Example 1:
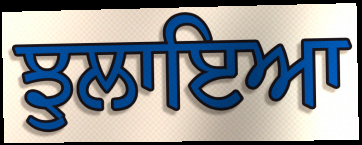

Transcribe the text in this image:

ਝੁਲਾਇਆ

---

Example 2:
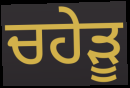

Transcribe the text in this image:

ਚਹੇੜੂ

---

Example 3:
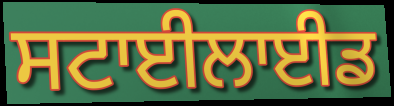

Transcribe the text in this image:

ਸਟਾਈਲਾਈਡ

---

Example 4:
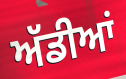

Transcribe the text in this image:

ਅੱਡੀਆਂ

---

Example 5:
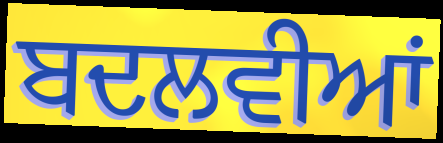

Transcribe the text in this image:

ਬਦਲਵੀਆਂ